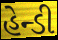
હેન્ડી